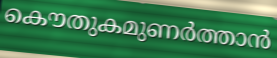
കൌതുകമുണർത്താൻ